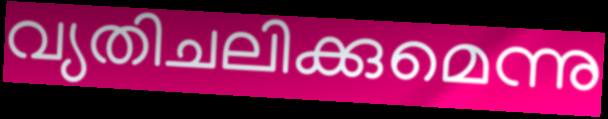
വ്യതിചലിക്കുമെന്നു